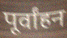
पूर्वांहन